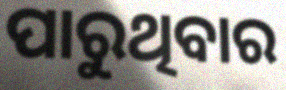
ପାରୁଥିବାର